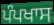
ਪੰਪਖਾਸ